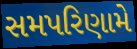
સમપરિણામે